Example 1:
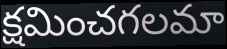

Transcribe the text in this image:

క్షమించగలమా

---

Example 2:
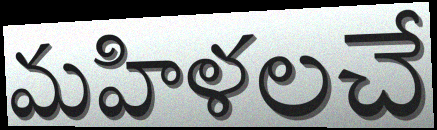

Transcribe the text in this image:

మహిళలచే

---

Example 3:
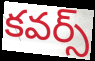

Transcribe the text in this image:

కవర్స్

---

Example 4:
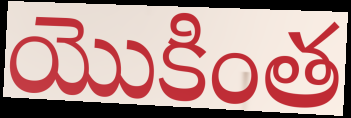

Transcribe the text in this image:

యొకింత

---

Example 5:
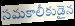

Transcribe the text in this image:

సమకాలీకుడైన